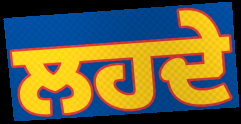
ਲਹਦੇ